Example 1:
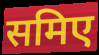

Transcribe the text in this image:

समिए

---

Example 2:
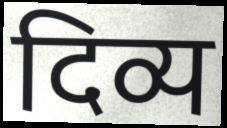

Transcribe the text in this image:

दिव्य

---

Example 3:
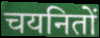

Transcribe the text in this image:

चयनितों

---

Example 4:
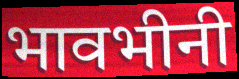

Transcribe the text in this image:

भावभीनी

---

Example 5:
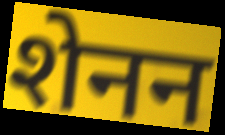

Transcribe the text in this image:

शेनन